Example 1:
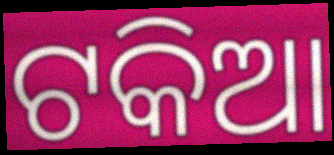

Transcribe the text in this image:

ଟକିଆ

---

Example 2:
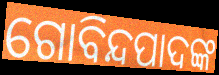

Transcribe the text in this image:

ଗୋବିନ୍ଦପାଦଙ୍କ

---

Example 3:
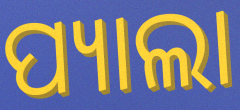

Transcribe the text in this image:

ପ୍ୟାଲା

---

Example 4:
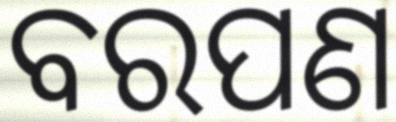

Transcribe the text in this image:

ବରପଣ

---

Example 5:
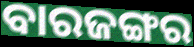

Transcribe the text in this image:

ବାରଜଙ୍ଗର